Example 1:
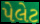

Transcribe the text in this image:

પેલેટ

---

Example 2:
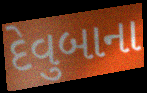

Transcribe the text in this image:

દેવુબાના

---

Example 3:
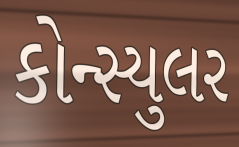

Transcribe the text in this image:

કોન્સ્યુલર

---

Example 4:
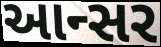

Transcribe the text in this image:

આન્સર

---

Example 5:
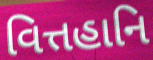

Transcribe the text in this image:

વિત્તહાનિ